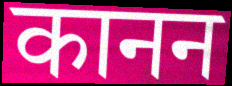
कानन